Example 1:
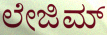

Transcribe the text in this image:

ಲೇಜಿಮ್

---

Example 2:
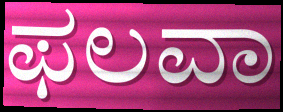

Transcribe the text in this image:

ಫಲವಾ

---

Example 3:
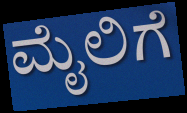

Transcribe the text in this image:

ಮೈಲಿಗೆ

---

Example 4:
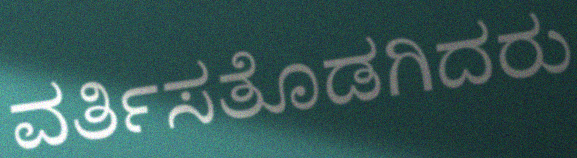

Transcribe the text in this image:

ವರ್ತಿಸತೊಡಗಿದರು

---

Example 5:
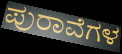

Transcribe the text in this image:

ಪುರಾವೆಗಳ